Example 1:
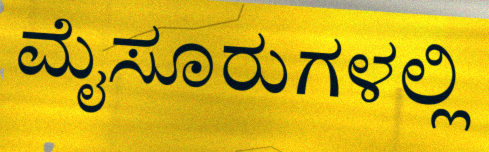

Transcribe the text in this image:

ಮೈಸೂರುಗಳಲ್ಲಿ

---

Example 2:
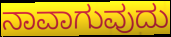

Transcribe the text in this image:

ನಾವಾಗುವುದು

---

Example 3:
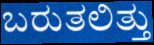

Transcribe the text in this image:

ಬರುತಲಿತ್ತು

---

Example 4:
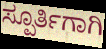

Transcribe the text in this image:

ಸ್ಪೂರ್ತಿಗಾಗಿ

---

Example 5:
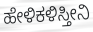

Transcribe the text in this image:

ಹೇಳಿಕಳಿಸ್ತೀನಿ